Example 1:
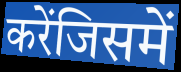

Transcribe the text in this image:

करेंजिसमें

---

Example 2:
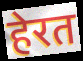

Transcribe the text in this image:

हेरत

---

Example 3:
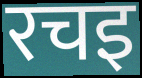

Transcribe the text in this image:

रचइ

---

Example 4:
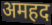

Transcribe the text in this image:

अमहद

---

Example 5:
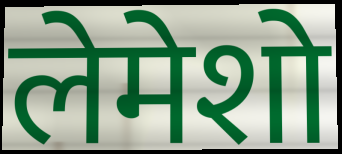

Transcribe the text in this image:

लेमेशो